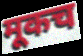
मूकच